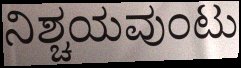
ನಿಶ್ಚಯವುಂಟು